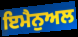
ਇਮੈਨੁਅਲ